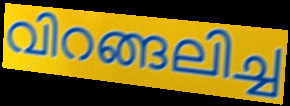
വിറങ്ങലിച്ച